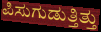
ಪಿಸುಗುಡುತ್ತಿತ್ತು